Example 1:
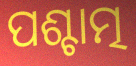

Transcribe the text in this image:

ପଶ୍ଚାତ୍ମ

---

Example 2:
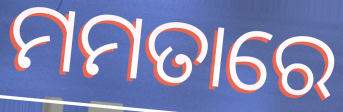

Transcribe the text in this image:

ମମତାରେ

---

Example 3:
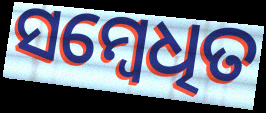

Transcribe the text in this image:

ସମ୍ବେଧିତ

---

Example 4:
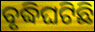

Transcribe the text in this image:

ବୃଦ୍ଧିଘଟିଛି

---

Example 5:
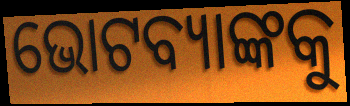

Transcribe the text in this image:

ଭୋଟବ୍ୟାଙ୍କକୁ